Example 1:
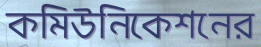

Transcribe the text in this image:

কমিউনিকেশনের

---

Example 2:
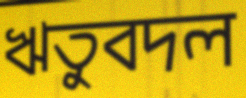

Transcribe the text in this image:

ঋতুবদল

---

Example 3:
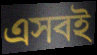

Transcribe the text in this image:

এসবই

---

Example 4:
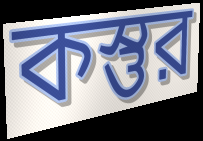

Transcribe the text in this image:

কস্তুর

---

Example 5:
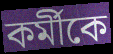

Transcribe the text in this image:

কর্মীকে